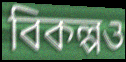
বিকল্পও